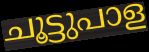
ചൂട്ടുപാള